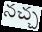
నచ్చ